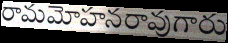
రామమోహనరావుగారు